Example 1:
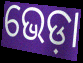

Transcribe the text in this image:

ଭେଡ଼ା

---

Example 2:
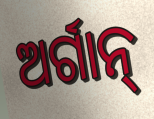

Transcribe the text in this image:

ଅର୍ଗାନ୍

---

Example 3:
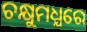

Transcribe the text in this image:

ଚକ୍ଷୁମଧ୍ଯରେ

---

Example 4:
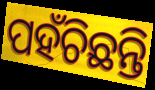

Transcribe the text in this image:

ପହଁଚିଛନ୍ତି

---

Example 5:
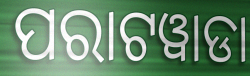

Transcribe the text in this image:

ପରାଟୱାଡା